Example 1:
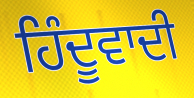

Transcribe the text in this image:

ਹਿੰਦੂਵਾਦੀ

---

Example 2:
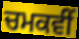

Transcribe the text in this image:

ਚਮਕਵੀਂ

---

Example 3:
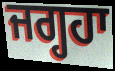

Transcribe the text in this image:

ਜਗ੍ਹਹਾ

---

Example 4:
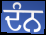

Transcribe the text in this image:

ਦੰਨ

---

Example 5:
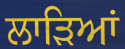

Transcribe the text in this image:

ਲਾੜਿਆਂ